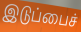
இடுப்பைச்